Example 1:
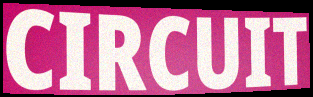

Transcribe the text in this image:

CIRCUIT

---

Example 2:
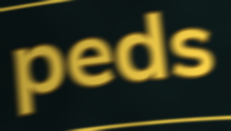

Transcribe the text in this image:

peds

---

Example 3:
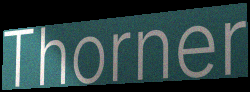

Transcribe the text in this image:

Thorner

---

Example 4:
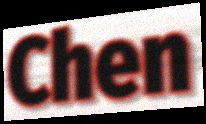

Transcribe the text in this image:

Chen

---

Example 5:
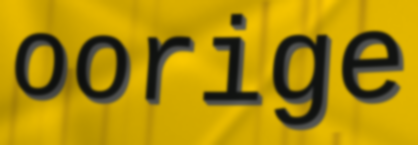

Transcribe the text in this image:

oorige